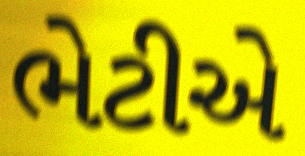
ભેટીએ